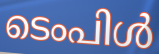
ടെംപിൾ